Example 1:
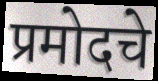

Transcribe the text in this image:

प्रमोदचे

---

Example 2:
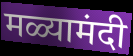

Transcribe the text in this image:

मळ्यामंदी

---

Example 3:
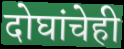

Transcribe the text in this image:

दोघांचेही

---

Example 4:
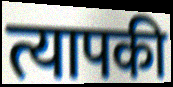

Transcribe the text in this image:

त्यापकी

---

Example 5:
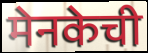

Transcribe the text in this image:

मेनकेची